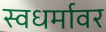
स्वधर्मावर